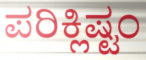
ಪರಿಕ್ಲಿಷ್ಟಂ